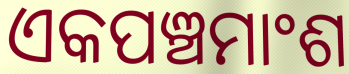
ଏକପଞ୍ଚମାଂଶ